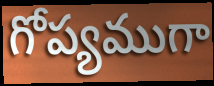
గోప్యముగా